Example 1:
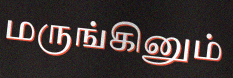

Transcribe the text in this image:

மருங்கினும்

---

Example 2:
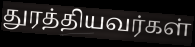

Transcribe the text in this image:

துரத்தியவர்கள்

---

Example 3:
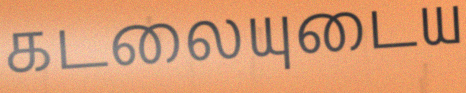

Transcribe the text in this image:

கடலையுடைய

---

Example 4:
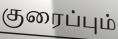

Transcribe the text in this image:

குரைப்பும்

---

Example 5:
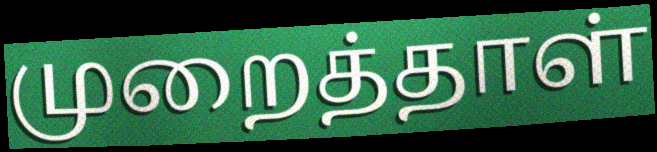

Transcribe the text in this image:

முறைத்தாள்